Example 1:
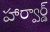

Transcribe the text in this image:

హార్వార్డ్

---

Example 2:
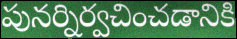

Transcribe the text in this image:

పునర్నిర్వచించడానికి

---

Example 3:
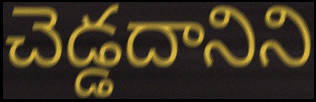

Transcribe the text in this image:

చెడ్డదానిని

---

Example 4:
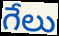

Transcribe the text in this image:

గేలు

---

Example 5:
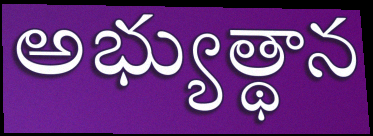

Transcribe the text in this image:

అభ్యుత్థాన